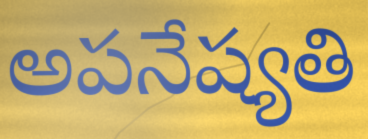
అపనేష్యతి